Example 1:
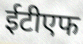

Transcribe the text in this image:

ईटीएफ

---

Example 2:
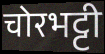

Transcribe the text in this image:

चोरभट्टी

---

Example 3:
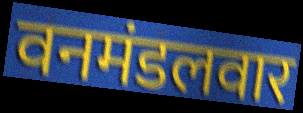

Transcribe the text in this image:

वनमंडलवार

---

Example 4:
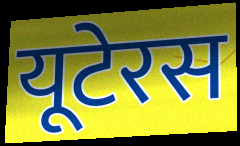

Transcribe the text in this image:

यूटेरस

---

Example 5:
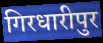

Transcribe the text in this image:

गिरधारीपुर